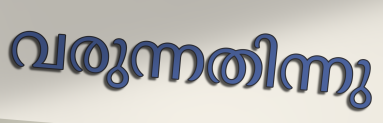
വരുന്നതിന്നു